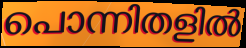
പൊന്നിതളിൽ